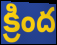
క్రింద